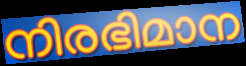
നിരഭിമാന